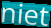
niet